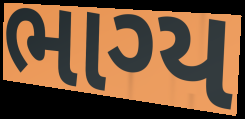
ભાગ્ય